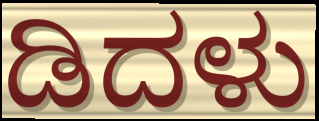
ಡಿದಳು